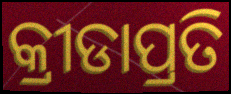
କ୍ରୀଡାପ୍ରତି